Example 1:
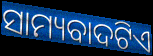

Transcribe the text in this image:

ସାମ୍ୟବାଦଟିଏ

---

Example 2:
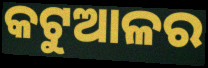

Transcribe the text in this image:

କଟୁଆଳର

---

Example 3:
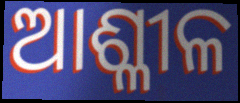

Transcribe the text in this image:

ଆଶ୍ଳୀଳ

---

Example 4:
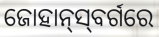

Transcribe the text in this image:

ଜୋହାନ୍‌ସ୍‌ବର୍ଗରେ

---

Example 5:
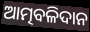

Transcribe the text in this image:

ଆତ୍ମବଳିଦାନ